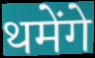
थमेंगे